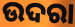
ଉଦରା